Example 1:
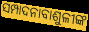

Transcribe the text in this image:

ସମ୍ପାଦନାବାଶୁଳୀଙ୍କ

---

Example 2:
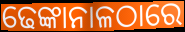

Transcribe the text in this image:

ଢେଙ୍କାନାଳଠାରେ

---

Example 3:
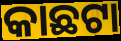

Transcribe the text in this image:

କାଛଟା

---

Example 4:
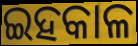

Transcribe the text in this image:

ଇହକାଳ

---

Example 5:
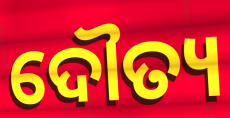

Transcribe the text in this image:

ଦୌତ୍ୟ